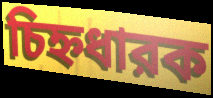
চিহ্নধারক